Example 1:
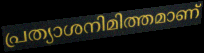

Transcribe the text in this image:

പ്രത്യാശനിമിത്തമാണ്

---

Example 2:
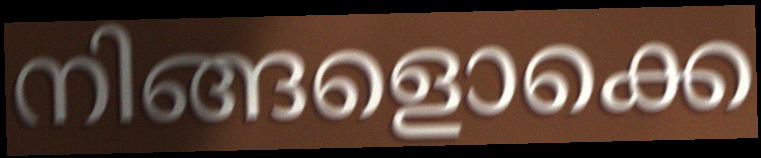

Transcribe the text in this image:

നിങ്ങളൊക്കെ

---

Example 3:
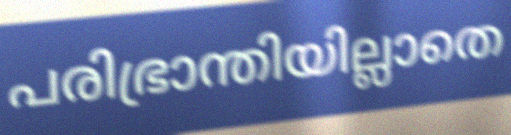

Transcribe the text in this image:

പരിഭ്രാന്തിയില്ലാതെ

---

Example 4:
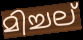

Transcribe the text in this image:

മിച്ചല്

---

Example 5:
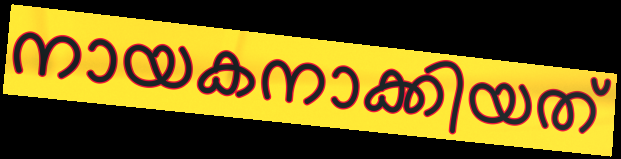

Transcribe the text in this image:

നായകനാക്കിയത്